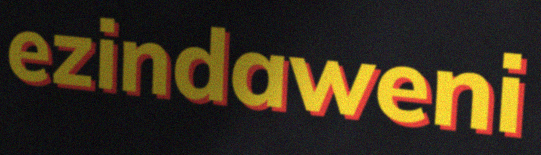
ezindaweni